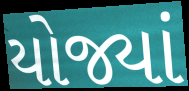
યોજ્યાં